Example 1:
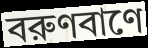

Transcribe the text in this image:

বরুণবাণে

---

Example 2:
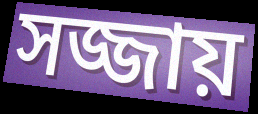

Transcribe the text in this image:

সজ্জায়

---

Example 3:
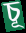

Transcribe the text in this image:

চূ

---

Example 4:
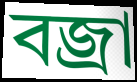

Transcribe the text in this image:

বজ্রা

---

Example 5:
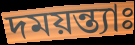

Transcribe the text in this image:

দময়ন্ত্যাঃ